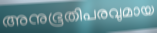
അനുഭൂതിപരവുമായ